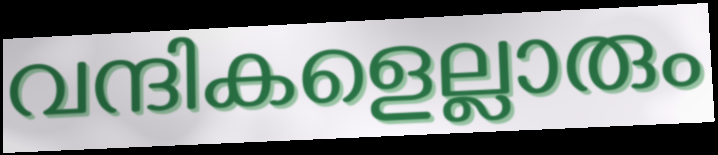
വന്ദികളെല്ലാരും